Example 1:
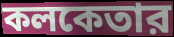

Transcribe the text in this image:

কলকেতার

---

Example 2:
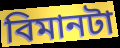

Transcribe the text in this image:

বিমানটা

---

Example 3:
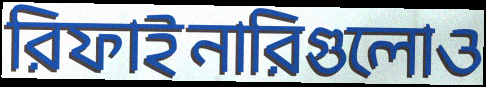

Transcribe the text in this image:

রিফাইনারিগুলোও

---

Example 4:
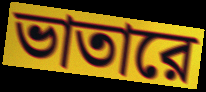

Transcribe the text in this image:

ভাতারে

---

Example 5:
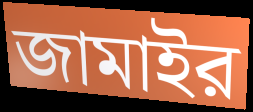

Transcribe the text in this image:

জামাইর